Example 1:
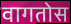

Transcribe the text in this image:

वागतोस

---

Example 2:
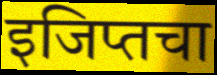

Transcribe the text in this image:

इजिप्तचा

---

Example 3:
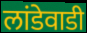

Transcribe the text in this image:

लांडेवाडी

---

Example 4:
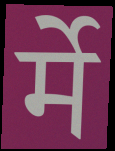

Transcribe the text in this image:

र्मे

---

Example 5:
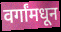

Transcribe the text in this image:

वर्गांमधून